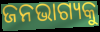
ଜନଭାଗ୍ୟକୁ